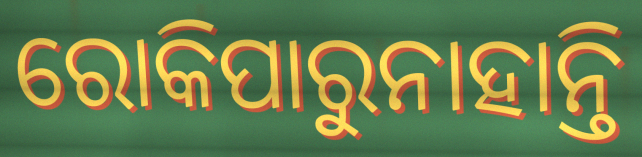
ରୋକିପାରୁନାହାନ୍ତି